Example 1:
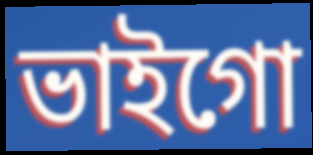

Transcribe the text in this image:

ভাইগো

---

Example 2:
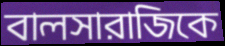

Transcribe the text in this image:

বালসারাজিকে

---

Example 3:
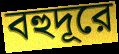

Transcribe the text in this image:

বহুদূরে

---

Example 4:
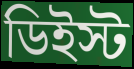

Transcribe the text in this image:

ডিইস্ট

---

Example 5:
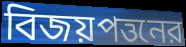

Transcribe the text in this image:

বিজয়পত্তনের